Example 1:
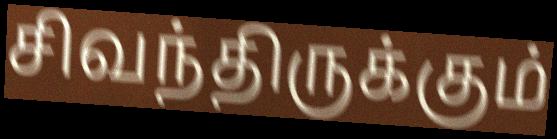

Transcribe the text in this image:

சிவந்திருக்கும்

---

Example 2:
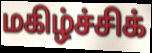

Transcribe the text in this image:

மகிழ்ச்சிக்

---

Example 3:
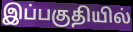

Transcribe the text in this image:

இப்பகுதியில்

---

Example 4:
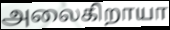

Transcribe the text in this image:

அலைகிறாயா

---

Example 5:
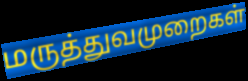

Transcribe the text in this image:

மருத்துவமுறைகள்